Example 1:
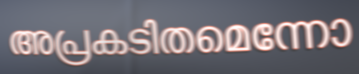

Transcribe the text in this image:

അപ്രകടിതമെന്നോ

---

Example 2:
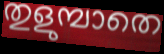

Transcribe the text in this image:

തുളുമ്പാതെ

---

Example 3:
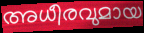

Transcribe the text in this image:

അധീരവുമായ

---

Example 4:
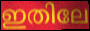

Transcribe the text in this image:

ഇതിലേ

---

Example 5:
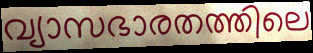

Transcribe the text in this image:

വ്യാസഭാരതത്തിലെ